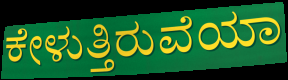
ಕೇಳುತ್ತಿರುವೆಯಾ